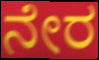
ನೇರ